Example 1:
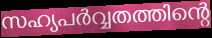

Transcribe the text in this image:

സഹ്യപർവ്വതത്തിന്റെ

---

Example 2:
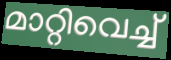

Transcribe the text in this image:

മാറ്റിവെച്ച്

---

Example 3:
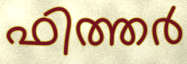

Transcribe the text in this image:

ഫിത്തർ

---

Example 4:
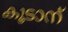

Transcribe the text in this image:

കൂടാന്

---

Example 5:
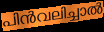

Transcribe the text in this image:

പിൻവലിച്ചാൽ